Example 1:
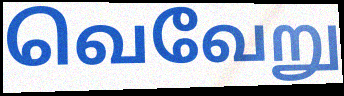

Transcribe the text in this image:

வெவேறு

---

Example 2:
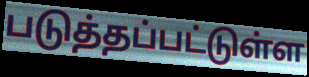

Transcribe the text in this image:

படுத்தப்பட்டுள்ள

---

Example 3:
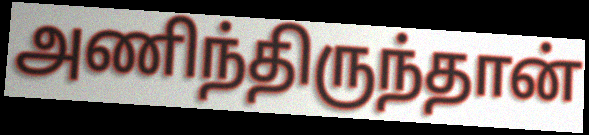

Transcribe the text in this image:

அணிந்திருந்தான்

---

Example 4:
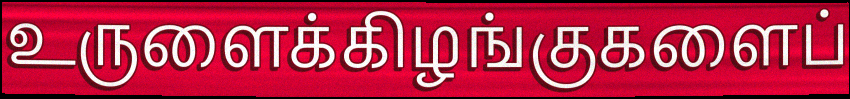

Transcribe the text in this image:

உருளைக்கிழங்குகளைப்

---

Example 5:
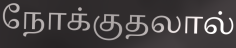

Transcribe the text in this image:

நோக்குதலால்